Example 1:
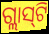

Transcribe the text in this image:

ଗ୍ଲାସ୍‍ଟି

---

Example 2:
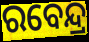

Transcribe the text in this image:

ରବେନ୍ଦ୍ର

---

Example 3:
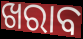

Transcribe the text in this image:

ଖରାବ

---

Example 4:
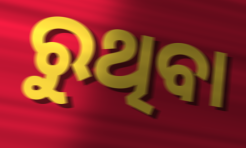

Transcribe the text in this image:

ରୁଥିବା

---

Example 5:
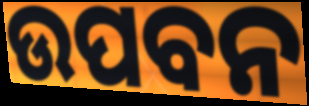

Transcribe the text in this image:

ଉପବନ